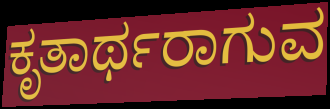
ಕೃತಾರ್ಥರಾಗುವ